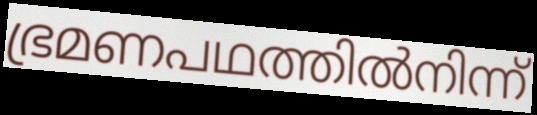
ഭ്രമണപഥത്തിൽനിന്ന്